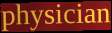
physician